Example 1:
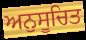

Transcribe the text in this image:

ਅਨੁਸੂਚਿਤ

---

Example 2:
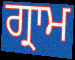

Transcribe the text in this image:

ਗ੍ਰਾਮ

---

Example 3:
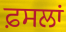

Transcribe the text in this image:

ਫ਼ਸਲਾਂ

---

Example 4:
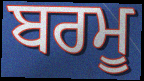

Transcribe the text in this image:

ਬਰਮੂ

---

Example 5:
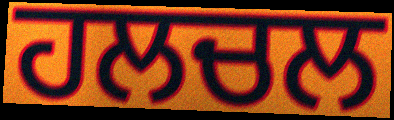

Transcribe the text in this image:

ਹਲਚਲ